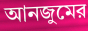
আনজুমের